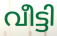
വീട്ടി